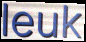
leuk